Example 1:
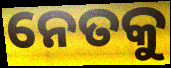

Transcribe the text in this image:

ନେତକୁ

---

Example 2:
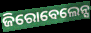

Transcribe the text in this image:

ଜିରୋବେଲେନ୍ସ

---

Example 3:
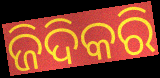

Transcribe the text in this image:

ଜିଦିକରି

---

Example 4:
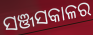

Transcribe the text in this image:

ସଞ୍ଜସକାଳର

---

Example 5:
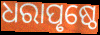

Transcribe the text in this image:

ଧରାପୃଷ୍ଠେ